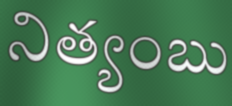
నిత్యంబు